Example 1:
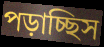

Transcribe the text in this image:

পড়াচ্ছিস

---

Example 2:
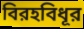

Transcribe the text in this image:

বিরহবিধূর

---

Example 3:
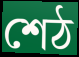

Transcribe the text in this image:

শেঠ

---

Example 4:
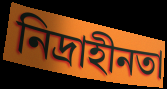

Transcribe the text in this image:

নিদ্রাহীনতা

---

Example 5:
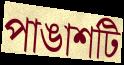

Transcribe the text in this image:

পাঙাশটি